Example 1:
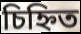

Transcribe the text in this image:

চিহ্নিত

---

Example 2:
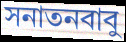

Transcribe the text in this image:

সনাতনবাবু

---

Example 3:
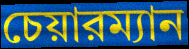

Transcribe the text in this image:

চেয়ারম্যান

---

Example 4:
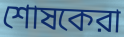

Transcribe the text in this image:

শোষকেরা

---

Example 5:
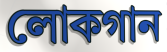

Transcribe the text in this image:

লোকগান